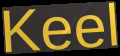
Keel